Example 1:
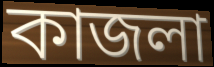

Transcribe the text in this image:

কাজলা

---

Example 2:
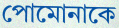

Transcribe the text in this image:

পোমোনাকে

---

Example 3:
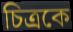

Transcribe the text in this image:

চিত্রকে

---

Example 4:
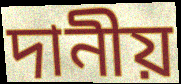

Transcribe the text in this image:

দানীয়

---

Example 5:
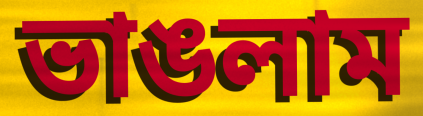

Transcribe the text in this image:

ভাঙলাম